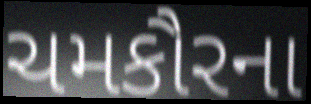
ચમકૌરના